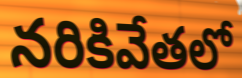
నరికివేతలో